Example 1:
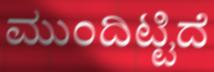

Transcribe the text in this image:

ಮುಂದಿಟ್ಟಿದೆ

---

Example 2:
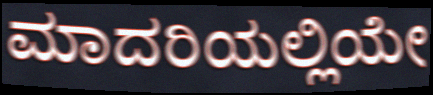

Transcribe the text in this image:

ಮಾದರಿಯಲ್ಲಿಯೇ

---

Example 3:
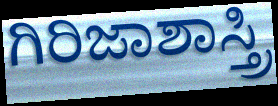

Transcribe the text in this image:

ಗಿರಿಜಾಶಾಸ್ತ್ರಿ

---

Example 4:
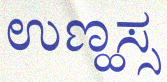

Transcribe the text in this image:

ಉಣ್ಹಸ್ಸ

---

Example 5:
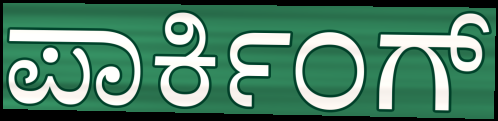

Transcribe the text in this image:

ಪಾರ್ಕಿಂಗ್